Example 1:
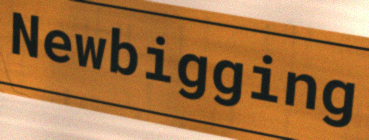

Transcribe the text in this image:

Newbigging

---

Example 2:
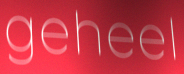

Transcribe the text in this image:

geheel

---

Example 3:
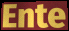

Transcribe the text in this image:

Ente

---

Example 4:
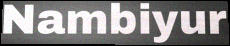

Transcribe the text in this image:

Nambiyur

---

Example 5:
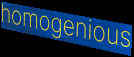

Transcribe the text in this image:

homogenious